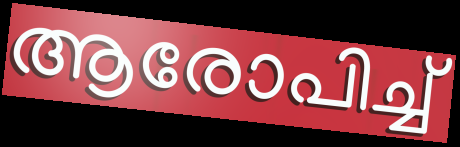
ആരോപിച്ച്